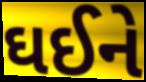
ઘઈને